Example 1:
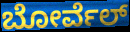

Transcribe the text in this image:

ಬೋರ್ವೆಲ್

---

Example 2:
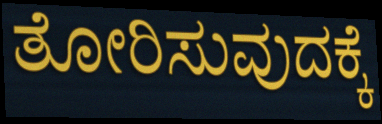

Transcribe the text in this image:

ತೋರಿಸುವುದಕ್ಕೆ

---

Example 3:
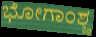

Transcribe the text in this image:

ಭೋಗಾಂಶ್ಚ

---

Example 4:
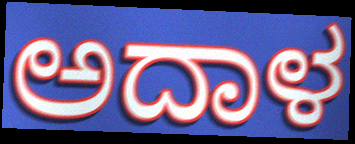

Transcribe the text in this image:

ಅದಾಳ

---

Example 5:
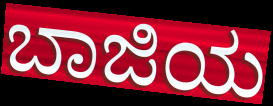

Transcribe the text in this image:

ಬಾಜಿಯ